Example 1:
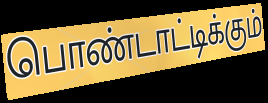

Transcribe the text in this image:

பொண்டாட்டிக்கும்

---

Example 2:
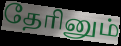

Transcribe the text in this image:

தேரினும்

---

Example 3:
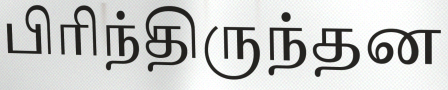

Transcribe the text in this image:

பிரிந்திருந்தன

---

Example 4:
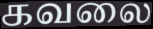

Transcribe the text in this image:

கவலை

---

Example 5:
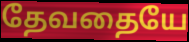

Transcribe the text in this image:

தேவதையே